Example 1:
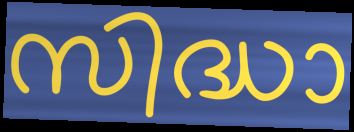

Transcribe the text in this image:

സിദ്ധാ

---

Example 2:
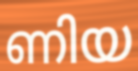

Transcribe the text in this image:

ണിയ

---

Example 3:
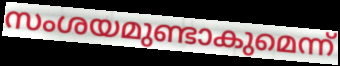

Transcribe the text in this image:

സംശയമുണ്ടാകുമെന്ന്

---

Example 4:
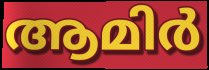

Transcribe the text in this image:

ആമിർ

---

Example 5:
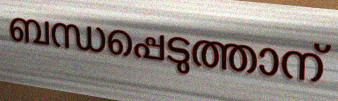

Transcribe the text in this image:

ബന്ധപ്പെടുത്താന്